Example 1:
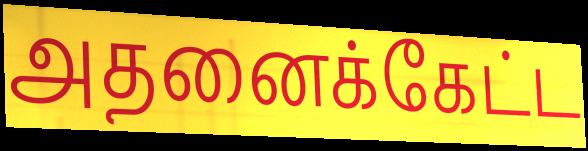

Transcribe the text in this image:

அதனைக்கேட்ட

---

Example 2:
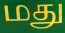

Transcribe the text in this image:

மது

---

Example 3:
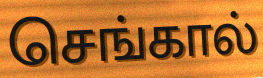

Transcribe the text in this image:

செங்கால்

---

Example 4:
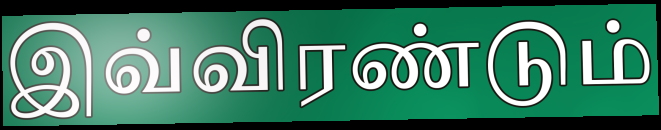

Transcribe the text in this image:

இவ்விரண்டும்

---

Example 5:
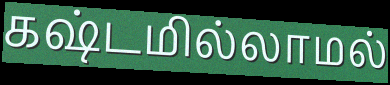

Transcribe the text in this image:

கஷ்டமில்லாமல்